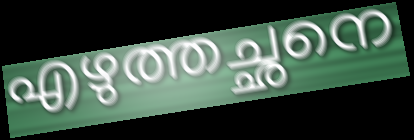
എഴുത്തച്ഛനെ